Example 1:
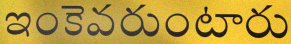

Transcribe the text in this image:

ఇంకెవరుంటారు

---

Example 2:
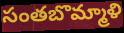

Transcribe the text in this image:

సంతబొమ్మాళి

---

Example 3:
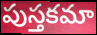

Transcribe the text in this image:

పుస్తకమా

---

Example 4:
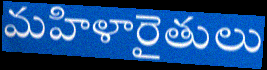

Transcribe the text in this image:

మహిళారైతులు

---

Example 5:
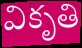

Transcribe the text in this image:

వికృతి